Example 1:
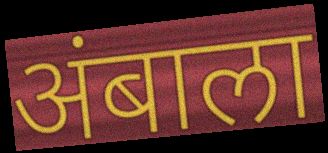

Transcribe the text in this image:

अंबाला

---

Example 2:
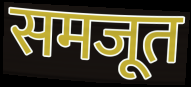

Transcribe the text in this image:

समजूत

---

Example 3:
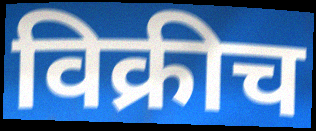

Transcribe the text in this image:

विक्रीच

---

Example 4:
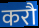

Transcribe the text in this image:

करौ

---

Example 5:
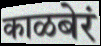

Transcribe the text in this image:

काळबेरं